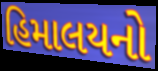
હિમાલયનો